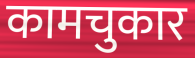
कामचुकार